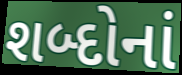
શબ્દોનાં